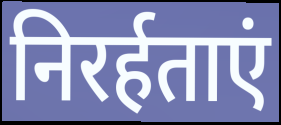
निरर्हताएं